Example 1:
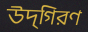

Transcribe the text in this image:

উদ্‌গিরণ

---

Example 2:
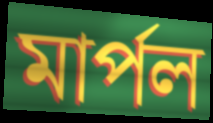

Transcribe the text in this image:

মার্পল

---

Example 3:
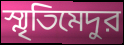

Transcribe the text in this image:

স্মৃতিমেদুর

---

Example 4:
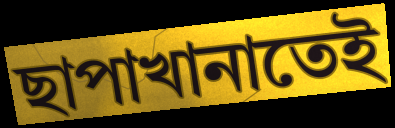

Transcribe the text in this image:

ছাপাখানাতেই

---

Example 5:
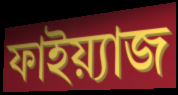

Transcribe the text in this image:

ফাইয়্যাজ